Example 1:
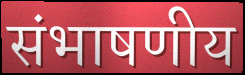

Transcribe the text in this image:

संभाषणीय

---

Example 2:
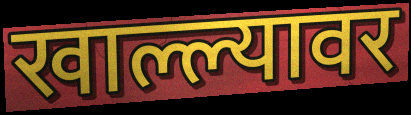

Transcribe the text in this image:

खाल्ल्यावर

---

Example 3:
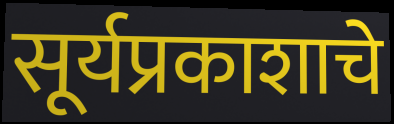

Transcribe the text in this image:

सूर्यप्रकाशाचे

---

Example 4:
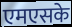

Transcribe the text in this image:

एमएसके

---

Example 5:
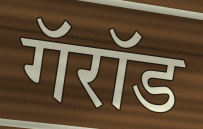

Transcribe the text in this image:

गॅरॉड